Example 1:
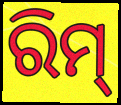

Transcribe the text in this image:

ରିମ୍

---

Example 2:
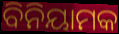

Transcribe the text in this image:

ବିନିୟାମକ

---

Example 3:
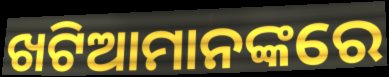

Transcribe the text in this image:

ଖଟିଆମାନଙ୍କରେ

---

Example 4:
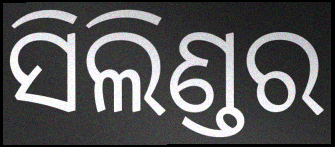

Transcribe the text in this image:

ସିଲିଣ୍ଡର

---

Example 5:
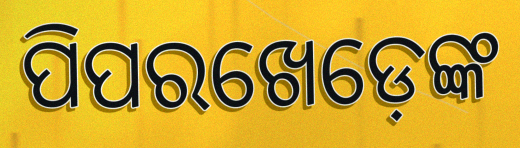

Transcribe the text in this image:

ପିପରଖେଡ଼େଙ୍କ